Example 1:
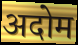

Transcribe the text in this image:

अदोम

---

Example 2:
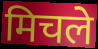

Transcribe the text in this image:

मिचले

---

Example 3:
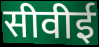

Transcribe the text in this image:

सीवीई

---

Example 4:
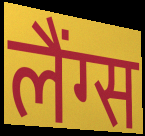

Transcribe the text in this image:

लैंग्स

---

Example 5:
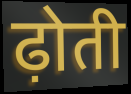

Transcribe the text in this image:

ढ़ोती